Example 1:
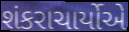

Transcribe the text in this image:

શંકરાચાર્યોએ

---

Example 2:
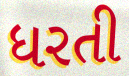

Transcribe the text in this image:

ધરતી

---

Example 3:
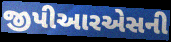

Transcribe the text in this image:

જીપીઆરએસની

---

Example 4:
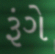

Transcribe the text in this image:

રૂંગે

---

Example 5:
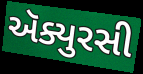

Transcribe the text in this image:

ઍક્યુરસી